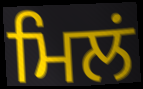
ਮਿਲਂ